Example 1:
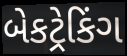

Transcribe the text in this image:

બેકટ્રેકિંગ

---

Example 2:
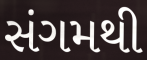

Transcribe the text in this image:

સંગમથી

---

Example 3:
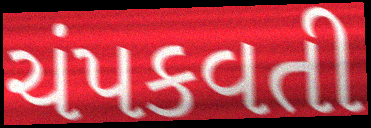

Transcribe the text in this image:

ચંપકવતી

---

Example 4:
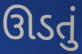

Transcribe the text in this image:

ઊડતું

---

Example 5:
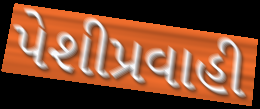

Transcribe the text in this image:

પેશીપ્રવાહી